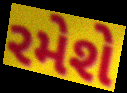
રમેશે